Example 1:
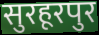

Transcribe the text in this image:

सुरहूरपुर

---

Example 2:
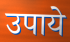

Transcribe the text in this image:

उपाये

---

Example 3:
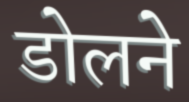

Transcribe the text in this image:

डोलने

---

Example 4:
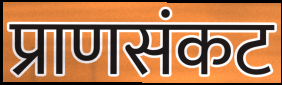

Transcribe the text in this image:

प्राणसंकट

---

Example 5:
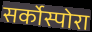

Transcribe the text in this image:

सर्कोस्पोरा